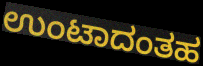
ಉಂಟಾದಂತಹ